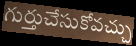
గుర్తుచేసుకోవచ్చు